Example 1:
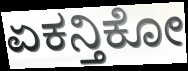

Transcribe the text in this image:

ಏಕನ್ತಿಕೋ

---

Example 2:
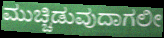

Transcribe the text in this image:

ಮುಚ್ಚಿಡುವುದಾಗಲೀ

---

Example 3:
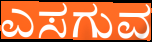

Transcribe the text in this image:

ಎಸಗುವ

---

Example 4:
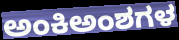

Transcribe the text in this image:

ಅಂಕಿಅಂಶಗಳ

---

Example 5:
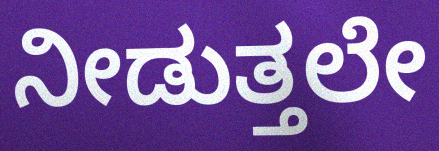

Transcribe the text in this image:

ನೀಡುತ್ತಲೇ